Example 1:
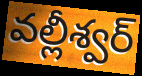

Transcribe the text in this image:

వల్లీశ్వర్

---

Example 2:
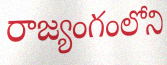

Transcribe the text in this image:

రాజ్యంగంలోని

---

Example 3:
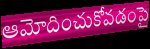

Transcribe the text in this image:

ఆమోదించుకోవడంపై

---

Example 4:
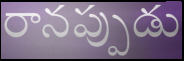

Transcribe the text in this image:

రానప్పుడు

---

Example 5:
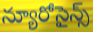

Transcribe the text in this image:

న్యూరోసైన్స్